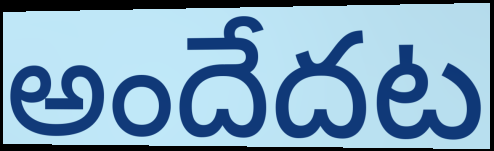
అందేదట